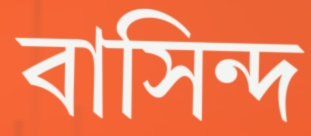
বাসিন্দ